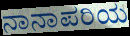
ನಾನಾಪರಿಯ